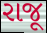
રાજૂ